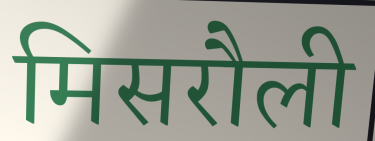
मिसरौली